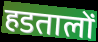
हडतालों